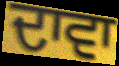
ਦਾਵਾ